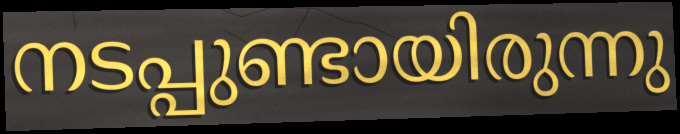
നടപ്പുണ്ടായിരുന്നു